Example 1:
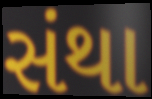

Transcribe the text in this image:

સંથા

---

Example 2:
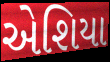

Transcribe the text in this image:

એશિયા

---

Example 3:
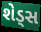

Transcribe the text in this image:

શેડ્સ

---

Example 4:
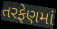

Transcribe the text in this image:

તરફેણમાં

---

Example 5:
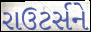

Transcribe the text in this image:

રાઉટર્સને